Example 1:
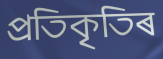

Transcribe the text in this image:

প্ৰতিকৃতিৰ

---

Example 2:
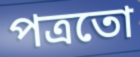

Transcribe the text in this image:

পত্ৰতো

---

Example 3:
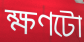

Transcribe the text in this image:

ক্ষণটো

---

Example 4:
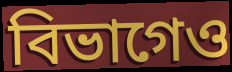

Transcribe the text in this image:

বিভাগেও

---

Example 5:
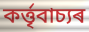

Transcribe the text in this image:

কৰ্ত্তৃবাচ্যৰ